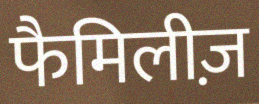
फैमिलीज़